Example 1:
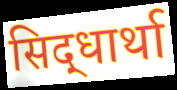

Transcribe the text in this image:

सिद्धार्था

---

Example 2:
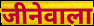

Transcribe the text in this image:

जीनेवाला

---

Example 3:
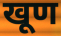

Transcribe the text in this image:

खूण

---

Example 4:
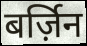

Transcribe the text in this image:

बर्ज़िन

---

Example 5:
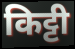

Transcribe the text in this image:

किट्टी